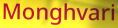
Monghvari